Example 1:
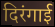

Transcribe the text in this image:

दिरंगाई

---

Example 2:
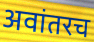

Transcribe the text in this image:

अवांतरच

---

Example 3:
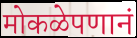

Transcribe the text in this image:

मोकळेपणानं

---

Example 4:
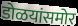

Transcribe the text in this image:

डोळयांसमोर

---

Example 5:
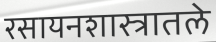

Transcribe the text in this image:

रसायनशास्त्रातले